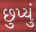
છુપ્યું